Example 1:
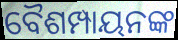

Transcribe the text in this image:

ବୈଶମ୍ପାୟନଙ୍କ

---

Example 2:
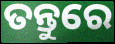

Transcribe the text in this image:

ତନ୍ତୁରେ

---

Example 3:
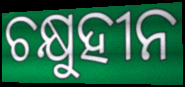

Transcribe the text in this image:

ଚକ୍ଷୁହୀନ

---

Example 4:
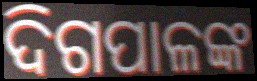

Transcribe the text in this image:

ଦିଗପାଳଙ୍କ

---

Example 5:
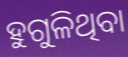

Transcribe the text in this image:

ହୁଗୁଳିଥିବା